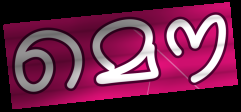
മൌ